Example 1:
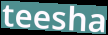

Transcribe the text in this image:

teesha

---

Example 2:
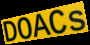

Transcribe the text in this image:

DOACs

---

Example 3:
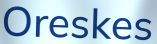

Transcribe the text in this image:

Oreskes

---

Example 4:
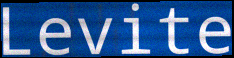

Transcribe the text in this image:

Levite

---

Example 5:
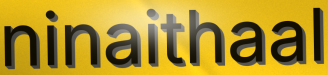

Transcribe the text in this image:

ninaithaal